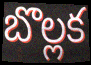
బొల్లక